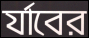
র্যাবের